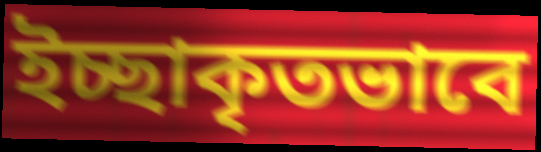
ইচ্ছাকৃতভাবে